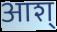
आश्